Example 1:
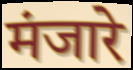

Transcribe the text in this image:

मंजारे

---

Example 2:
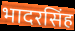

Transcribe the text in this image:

भादरसिंह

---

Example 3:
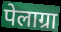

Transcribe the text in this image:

पेलाग्रा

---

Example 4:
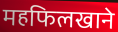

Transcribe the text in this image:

महफिलखाने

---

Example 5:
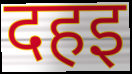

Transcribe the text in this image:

दहइ